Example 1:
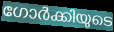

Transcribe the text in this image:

ഗോർക്കിയുടെ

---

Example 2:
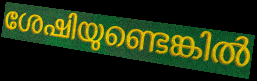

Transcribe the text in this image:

ശേഷിയുണ്ടെങ്കിൽ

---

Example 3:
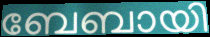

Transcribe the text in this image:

ബേബായി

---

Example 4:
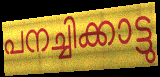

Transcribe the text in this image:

പനച്ചിക്കാട്ടു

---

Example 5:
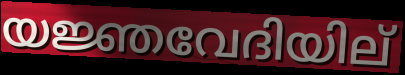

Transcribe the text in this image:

യജ്ഞവേദിയില്